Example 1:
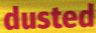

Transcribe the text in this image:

dusted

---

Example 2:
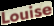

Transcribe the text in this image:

Louise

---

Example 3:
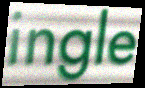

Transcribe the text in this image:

ingle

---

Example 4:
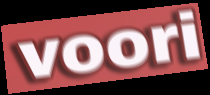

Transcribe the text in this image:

voori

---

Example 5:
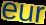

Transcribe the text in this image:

eur